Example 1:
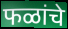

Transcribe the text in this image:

फळांचे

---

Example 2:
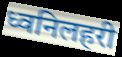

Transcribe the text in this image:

ध्वनिलहरी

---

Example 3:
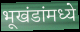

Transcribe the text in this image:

भूखंडांमध्ये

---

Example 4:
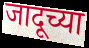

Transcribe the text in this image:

जादूच्या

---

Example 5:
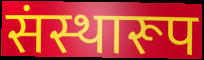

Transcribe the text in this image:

संस्थारूप